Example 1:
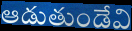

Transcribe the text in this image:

ఆడుతుండేవి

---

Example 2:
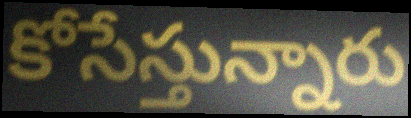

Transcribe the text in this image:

కోసేస్తున్నారు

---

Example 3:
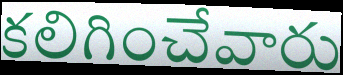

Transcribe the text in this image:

కలిగించేవారు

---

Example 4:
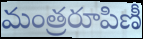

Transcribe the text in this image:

మంత్రరూపిణీ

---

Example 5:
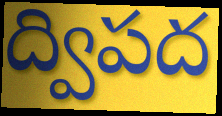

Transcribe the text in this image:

ద్విపద